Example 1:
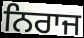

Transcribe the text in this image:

ਨਿਰਾਜ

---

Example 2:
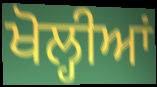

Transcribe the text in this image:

ਖੋਲ੍ਹੀਆਂ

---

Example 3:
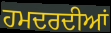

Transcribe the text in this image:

ਹਮਦਰਦੀਆਂ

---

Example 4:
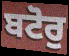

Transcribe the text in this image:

ਬਟੋਰੁ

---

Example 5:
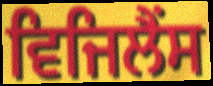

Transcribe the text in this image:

ਵਿਜਿਲੈਂਸ